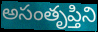
అసంతృప్తిని